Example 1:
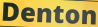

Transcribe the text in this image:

Denton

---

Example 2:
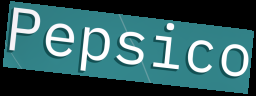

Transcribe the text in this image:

Pepsico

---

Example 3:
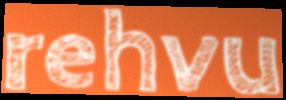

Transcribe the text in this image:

rehvu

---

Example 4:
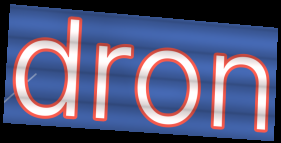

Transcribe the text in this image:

dron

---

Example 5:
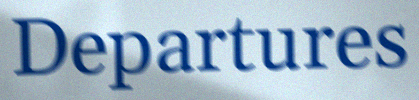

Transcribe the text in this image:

Departures